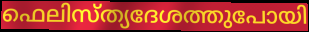
ഫെലിസ്ത്യദേശത്തുപോയി